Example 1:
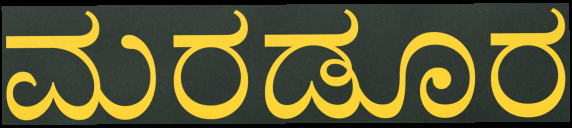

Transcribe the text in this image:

ಮರಡೂರ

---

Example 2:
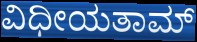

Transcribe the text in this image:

ವಿಧೀಯತಾಮ್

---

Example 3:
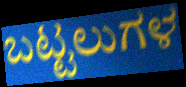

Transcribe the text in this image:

ಬಟ್ಟಲುಗಳ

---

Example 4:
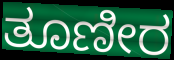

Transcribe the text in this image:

ತೂಣೀರ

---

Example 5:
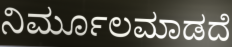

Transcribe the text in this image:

ನಿರ್ಮೂಲಮಾಡದೆ